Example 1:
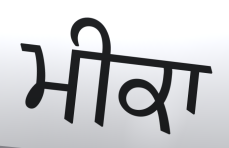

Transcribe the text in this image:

ਮੀਕਾ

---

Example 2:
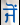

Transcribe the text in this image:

ਜੋਂ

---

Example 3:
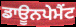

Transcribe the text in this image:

ਡਾਊਨਪੇਮੈਂਟ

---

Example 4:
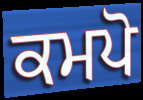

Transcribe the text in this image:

ਕਮਪੋ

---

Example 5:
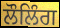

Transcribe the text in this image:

ਲੌਲਿੰਗ